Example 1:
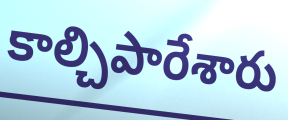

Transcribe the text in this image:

కాల్చిపారేశారు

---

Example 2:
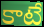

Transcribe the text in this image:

కాటే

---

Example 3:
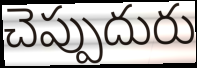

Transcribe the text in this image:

చెప్పుదురు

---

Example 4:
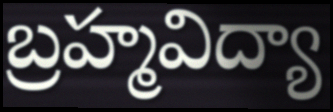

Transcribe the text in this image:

బ్రహ్మవిద్యా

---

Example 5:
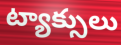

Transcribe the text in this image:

ట్యాక్సులు